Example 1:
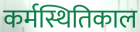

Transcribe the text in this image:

कर्मस्थितिकाल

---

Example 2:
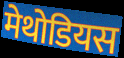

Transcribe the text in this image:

मेथोडियस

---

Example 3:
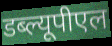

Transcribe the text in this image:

डब्ल्यूपीएल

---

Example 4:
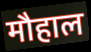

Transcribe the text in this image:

मौहाल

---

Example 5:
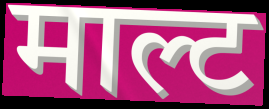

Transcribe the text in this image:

माल्ट